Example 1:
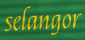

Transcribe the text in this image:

selangor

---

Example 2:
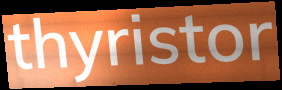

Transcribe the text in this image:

thyristor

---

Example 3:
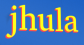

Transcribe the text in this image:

jhula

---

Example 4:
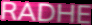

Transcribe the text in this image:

RADHE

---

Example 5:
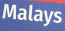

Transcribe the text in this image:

Malays